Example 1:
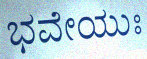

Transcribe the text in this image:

ಭವೇಯುಃ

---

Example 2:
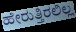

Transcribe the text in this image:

ಹೇರುತ್ತಿರಲಿಲ್ಲ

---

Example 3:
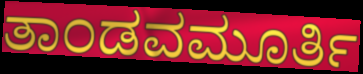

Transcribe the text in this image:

ತಾಂಡವಮೂರ್ತಿ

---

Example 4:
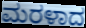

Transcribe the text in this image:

ಮರಳಾದ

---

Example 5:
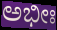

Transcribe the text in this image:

ಅಭೀಃ